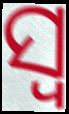
ସ୍ୱ